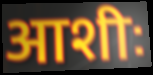
आशीः